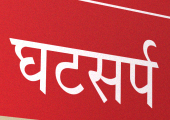
घटसर्प